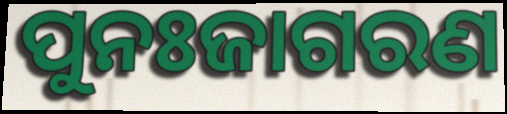
ପୁନଃଜାଗରଣ